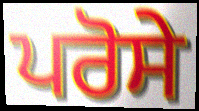
ਪਰੋਸੇ